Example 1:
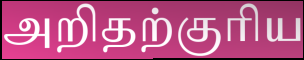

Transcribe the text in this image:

அறிதற்குரிய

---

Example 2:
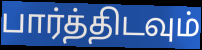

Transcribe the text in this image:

பார்த்திடவும்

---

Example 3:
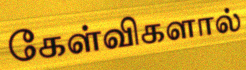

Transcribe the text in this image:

கேள்விகளால்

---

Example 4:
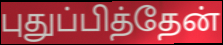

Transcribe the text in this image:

புதுப்பித்தேன்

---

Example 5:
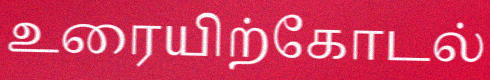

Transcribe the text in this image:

உரையிற்கோடல்